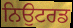
ਨਿਉਟਰਡ